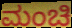
ಮಂಚಿ